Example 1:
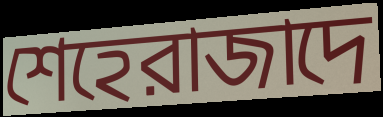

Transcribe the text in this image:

শেহেরাজাদে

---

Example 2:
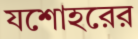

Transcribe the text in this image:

যশোহরের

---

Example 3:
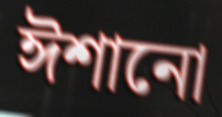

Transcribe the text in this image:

ঈশানো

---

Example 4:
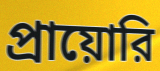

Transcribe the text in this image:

প্রায়োরি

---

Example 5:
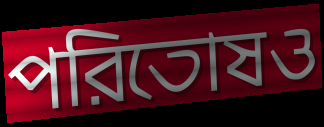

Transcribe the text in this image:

পরিতোষও